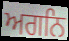
ਅਗਨਿ